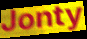
Jonty